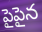
పైపైన